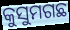
କୁସୁମଗଛ